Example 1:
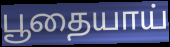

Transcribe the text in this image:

பூதையாய்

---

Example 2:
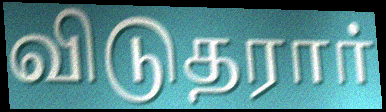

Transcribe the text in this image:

விடுதரார்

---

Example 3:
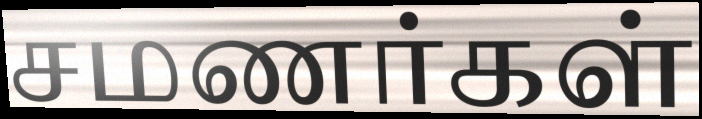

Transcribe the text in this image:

சமணர்கள்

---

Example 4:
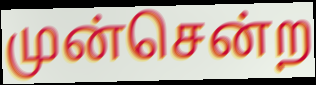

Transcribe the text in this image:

முன்சென்ற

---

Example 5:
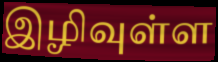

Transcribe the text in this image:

இழிவுள்ள